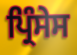
ਪ੍ਰਿੰਸੇਸ